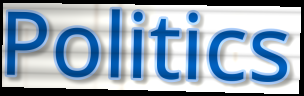
Politics